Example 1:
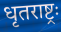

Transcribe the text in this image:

धृतराष्ट्रः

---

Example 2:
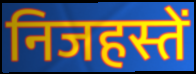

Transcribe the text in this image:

निजहस्तें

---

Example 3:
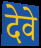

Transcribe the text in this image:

देवे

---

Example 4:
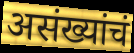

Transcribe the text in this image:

असंख्यांचं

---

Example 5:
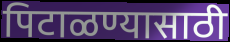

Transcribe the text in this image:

पिटाळण्यासाठी